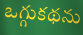
ఒగ్గుకథను